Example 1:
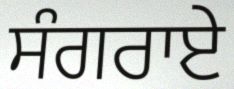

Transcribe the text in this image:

ਸੰਗਰਾਏ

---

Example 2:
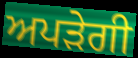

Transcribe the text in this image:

ਅਪੜੇਗੀ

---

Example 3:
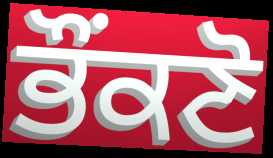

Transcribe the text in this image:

ਭੌਂਕਣੋ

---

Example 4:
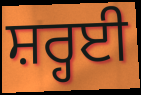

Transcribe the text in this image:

ਸ਼ਰ੍ਹਈ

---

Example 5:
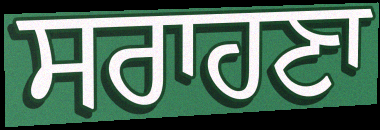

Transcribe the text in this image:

ਸਰਾਹਣਾ